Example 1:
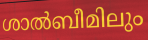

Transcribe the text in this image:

ശാൽബീമിലും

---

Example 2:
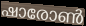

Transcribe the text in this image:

ഷാരോൺ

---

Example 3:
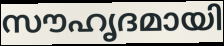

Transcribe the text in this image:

സൗഹൃദമായി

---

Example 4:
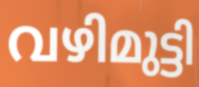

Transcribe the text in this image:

വഴിമുട്ടി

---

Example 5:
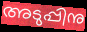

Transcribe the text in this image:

അടുപ്പിനു